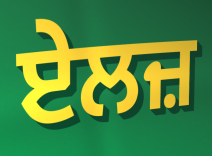
ਏਲਜ਼